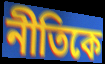
নীতিকে